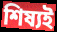
শিষ্যই